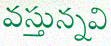
వస్తున్నవి